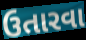
ઉતારવા